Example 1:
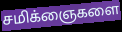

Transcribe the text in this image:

சமிக்ஞைகளை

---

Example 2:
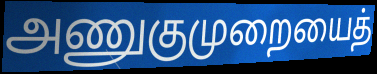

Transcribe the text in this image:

அணுகுமுறையைத்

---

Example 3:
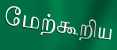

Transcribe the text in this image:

மேற்கூறிய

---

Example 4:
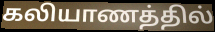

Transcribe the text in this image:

கலியாணத்தில்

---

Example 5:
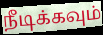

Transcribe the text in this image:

நீடிக்கவும்